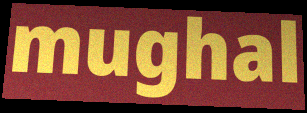
mughal